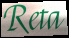
Reta